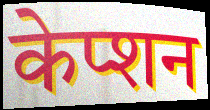
केप्शन